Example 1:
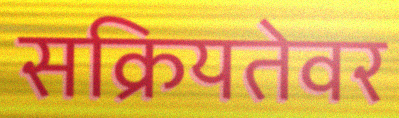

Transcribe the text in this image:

सक्रियतेवर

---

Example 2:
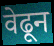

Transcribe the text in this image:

वेढून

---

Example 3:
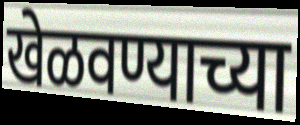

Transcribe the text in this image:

खेळवण्याच्या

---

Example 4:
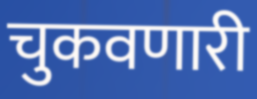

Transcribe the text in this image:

चुकवणारी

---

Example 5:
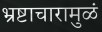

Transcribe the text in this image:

भ्रष्टाचारामुळं